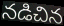
నడిచిన